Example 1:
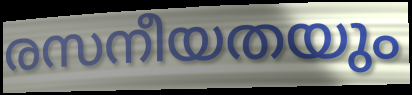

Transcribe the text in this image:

രസനീയതയും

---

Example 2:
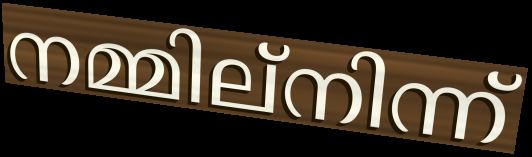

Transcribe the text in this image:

നമ്മില്നിന്ന്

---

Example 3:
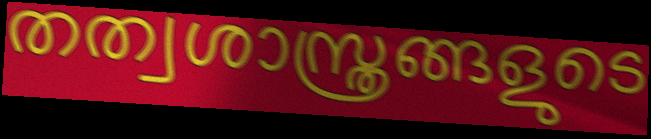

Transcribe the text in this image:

തത്വശാസ്ത്രങ്ങളുടെ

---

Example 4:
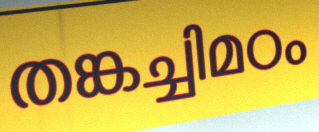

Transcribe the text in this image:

തങ്കച്ചിമഠം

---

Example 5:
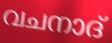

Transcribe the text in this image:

വചനാദ്